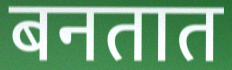
बनतात